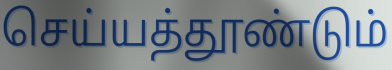
செய்யத்தூண்டும்